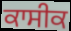
ਕਾਸੀਕ